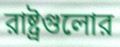
রাষ্ট্রগুলোর